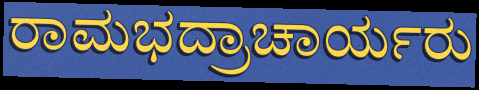
ರಾಮಭದ್ರಾಚಾರ್ಯರು